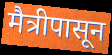
मैत्रीपासून